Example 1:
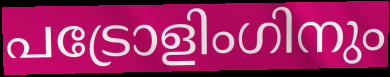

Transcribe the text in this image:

പട്രോളിംഗിനും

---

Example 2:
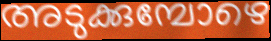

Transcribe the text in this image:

അടുക്കുമ്പോഴെ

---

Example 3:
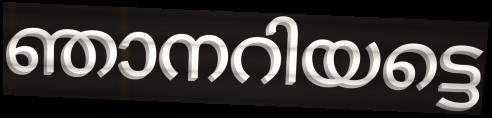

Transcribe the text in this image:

ഞാനറിയട്ടെ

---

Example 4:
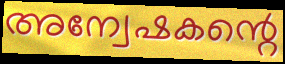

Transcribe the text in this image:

അന്വേഷകന്റെ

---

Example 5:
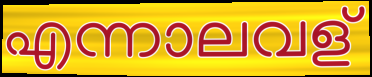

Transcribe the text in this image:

എന്നാലവള്